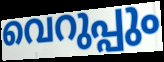
വെറുപ്പും